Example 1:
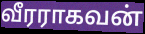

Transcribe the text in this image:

வீரராகவன்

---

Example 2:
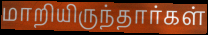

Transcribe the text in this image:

மாறியிருந்தார்கள்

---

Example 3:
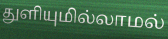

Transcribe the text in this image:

துளியுமில்லாமல்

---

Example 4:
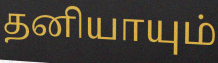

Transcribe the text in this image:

தனியாயும்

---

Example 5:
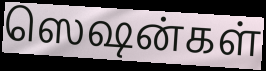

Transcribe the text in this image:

ஸெஷன்கள்